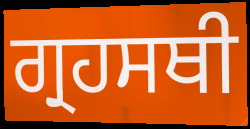
ਗ੍ਰਹਸਥੀ